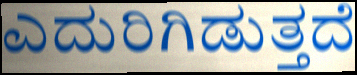
ಎದುರಿಗಿಡುತ್ತದೆ